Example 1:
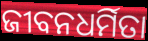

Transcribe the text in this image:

ଜୀବନଧର୍ମିତା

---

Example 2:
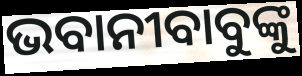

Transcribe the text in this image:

ଭବାନୀବାବୁଙ୍କୁ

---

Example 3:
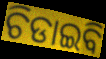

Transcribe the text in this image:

ଚିଡାଇବି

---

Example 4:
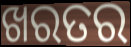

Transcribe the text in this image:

ଖରତର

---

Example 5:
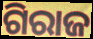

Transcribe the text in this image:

ଗିରାଜ